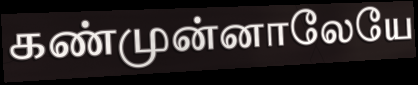
கண்முன்னாலேயே